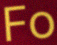
Fo